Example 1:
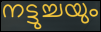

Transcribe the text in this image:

നട്ടുച്ചയും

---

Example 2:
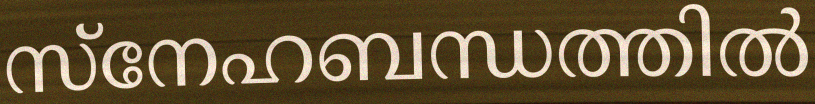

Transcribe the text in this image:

സ്നേഹബന്ധത്തിൽ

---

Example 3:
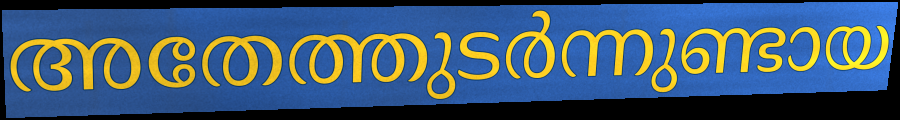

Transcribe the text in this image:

അതേത്തുടർന്നുണ്ടായ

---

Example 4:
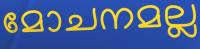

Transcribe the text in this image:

മോചനമല്ല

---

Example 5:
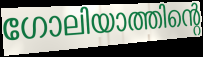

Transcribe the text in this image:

ഗോലിയാത്തിന്റെ